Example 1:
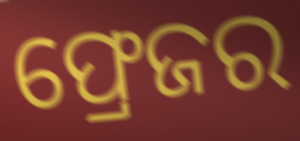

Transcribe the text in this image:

ଫ୍ରେଜର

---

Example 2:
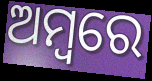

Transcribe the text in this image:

ଅମ୍ବରେ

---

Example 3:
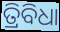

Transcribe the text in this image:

ତ୍ରିବିଧା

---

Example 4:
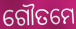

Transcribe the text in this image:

ଗୌତମେ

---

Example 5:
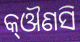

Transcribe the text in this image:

କ୍ଔଣସି